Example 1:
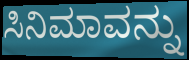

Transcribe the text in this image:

ಸಿನಿಮಾವನ್ನು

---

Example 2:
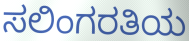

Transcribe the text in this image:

ಸಲಿಂಗರತಿಯ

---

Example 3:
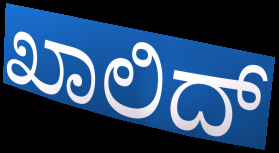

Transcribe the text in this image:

ಖಾಲಿದ್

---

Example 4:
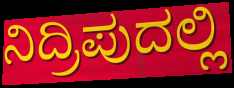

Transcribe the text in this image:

ನಿದ್ರಿಪುದಲ್ಲಿ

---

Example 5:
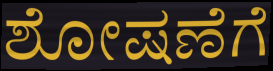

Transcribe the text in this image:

ಶೋಷಣೆಗೆ